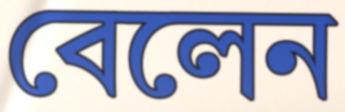
বেলেন